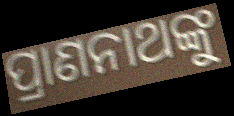
ପ୍ରାଣନାଥଙ୍କୁ